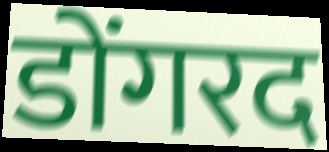
डोंगरद